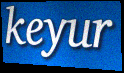
keyur